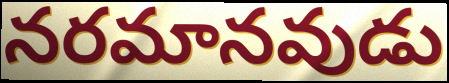
నరమానవుడు